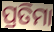
ପ୍ରତିମା